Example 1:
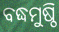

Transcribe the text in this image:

ବଦ୍ଧମୁଷ୍ଠି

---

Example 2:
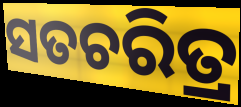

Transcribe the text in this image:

ସତଚରିତ୍ର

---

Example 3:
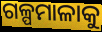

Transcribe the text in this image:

ଗଳ୍ପମାଳାକୁ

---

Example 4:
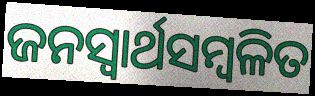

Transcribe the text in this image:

ଜନସ୍ବାର୍ଥସମ୍ବଳିତ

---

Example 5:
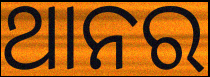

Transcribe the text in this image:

ଥାନର